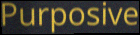
Purposive